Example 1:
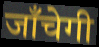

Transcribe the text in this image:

जाँचेगी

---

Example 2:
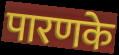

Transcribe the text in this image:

पारणके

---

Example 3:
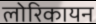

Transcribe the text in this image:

लोरिकायन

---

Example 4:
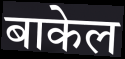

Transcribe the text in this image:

बाकेल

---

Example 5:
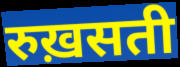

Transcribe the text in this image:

रुख़सती